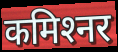
कमिश्‍नर